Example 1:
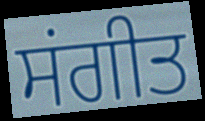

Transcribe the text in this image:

ਸਂਗੀਤ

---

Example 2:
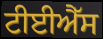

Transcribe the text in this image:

ਟੀਈਐੱਸ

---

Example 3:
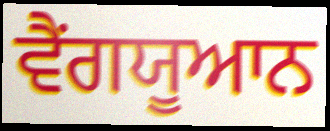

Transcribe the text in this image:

ਵੈਂਗਯੂਆਨ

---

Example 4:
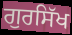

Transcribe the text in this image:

ਗੁਰਸਿੱਖ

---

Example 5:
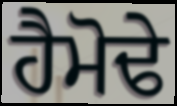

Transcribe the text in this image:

ਹੈਮੋਢੇ